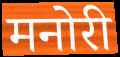
मनोरी